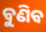
ବୁଣିବ